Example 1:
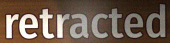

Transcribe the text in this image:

retracted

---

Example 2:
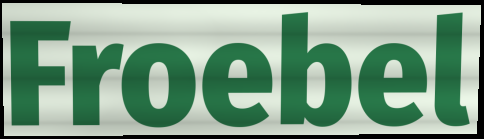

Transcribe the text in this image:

Froebel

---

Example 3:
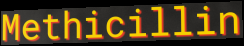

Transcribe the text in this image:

Methicillin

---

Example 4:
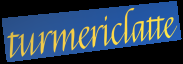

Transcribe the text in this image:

turmericlatte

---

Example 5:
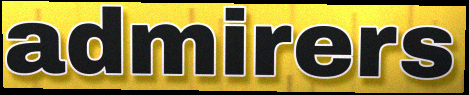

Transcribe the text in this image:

admirers